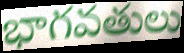
భాగవతులు